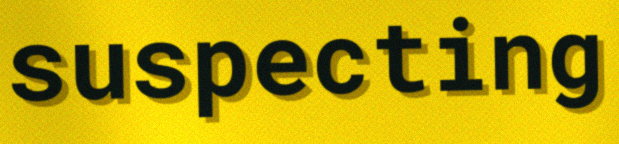
suspecting